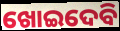
ଖୋଇଦେବି